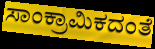
ಸಾಂಕ್ರಾಮಿಕದಂತೆ